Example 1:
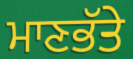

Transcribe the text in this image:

ਮਾਣਭੱਤੇ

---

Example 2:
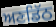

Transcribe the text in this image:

ਅਣਡਿੱਠ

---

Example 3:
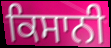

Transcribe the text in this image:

ਕਿਸਾਨੀ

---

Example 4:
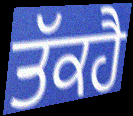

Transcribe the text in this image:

ਤੱਕਹੈ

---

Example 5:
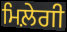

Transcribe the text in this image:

ਮਿਲ਼ੇਗੀ